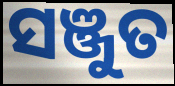
ସଞ୍ଜୁତ